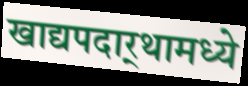
खाद्यपदार्थामध्ये